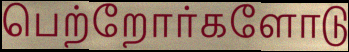
பெற்றோர்களோடு